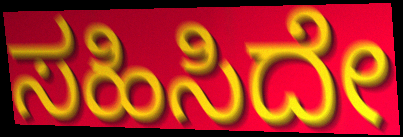
ಸಹಿಸಿದೇ